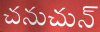
చనుచున్